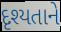
દૃશ્યતાને